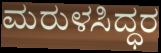
ಮರುಳಸಿದ್ಧರ